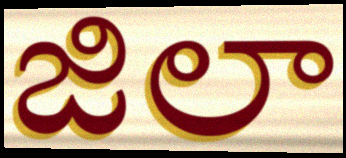
జిలా